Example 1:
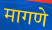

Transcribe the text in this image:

मागणे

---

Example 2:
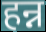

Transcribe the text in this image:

हन्न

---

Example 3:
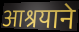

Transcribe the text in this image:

आश्रयाने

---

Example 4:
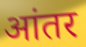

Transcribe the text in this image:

आंतर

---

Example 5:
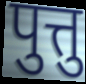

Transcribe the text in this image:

पुत्तु